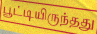
பூட்டியிருந்தது